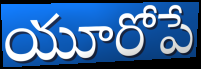
యూరోపే